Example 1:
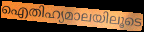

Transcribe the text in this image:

ഐതിഹ്യമാലയിലൂടെ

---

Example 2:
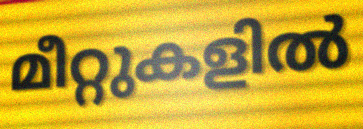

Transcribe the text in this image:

മീറ്റുകളിൽ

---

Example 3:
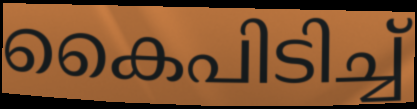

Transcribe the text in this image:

കൈപിടിച്ച്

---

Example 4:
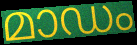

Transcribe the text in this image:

മാഡം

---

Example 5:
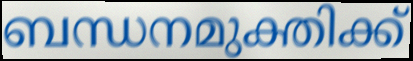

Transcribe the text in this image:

ബന്ധനമുക്തിക്ക്